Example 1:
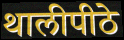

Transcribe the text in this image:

थालीपीठे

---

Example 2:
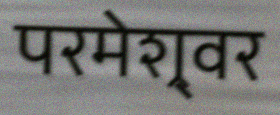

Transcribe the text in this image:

परमेश्र्वर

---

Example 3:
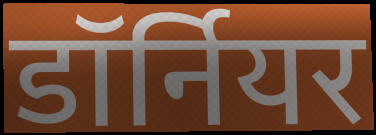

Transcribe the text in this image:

डॉर्नियर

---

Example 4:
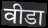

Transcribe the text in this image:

वीडा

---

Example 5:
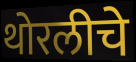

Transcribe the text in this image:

थोरलीचे